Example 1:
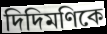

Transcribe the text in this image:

দিদিমণিকে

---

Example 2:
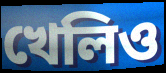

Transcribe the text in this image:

খেলিও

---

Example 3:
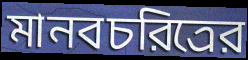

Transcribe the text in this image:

মানবচরিত্রের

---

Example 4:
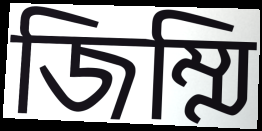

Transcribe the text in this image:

জিম্মি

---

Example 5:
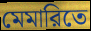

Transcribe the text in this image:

মেমারিতে